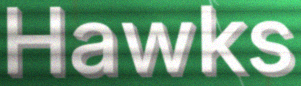
Hawks